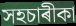
সহচাৰীকা